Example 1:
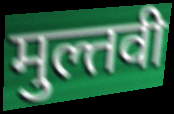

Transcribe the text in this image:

मुल्तवी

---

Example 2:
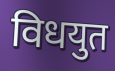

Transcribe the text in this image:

विधयुत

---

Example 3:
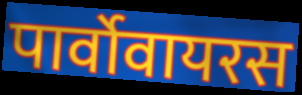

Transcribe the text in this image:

पार्वोवायरस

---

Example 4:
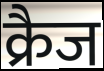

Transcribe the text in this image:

क्रैज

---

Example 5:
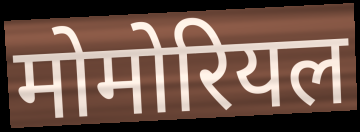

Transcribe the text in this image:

मोमोरियल